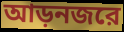
আড়নজরে